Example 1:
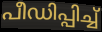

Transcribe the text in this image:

പീഡിപ്പിച്ച്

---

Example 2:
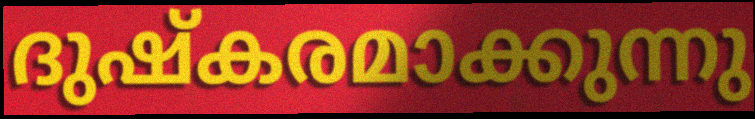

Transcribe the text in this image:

ദുഷ്കരമാക്കുന്നു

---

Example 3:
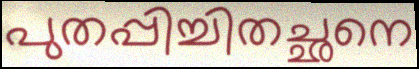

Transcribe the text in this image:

പുതപ്പിച്ചിതച്ഛനെ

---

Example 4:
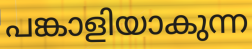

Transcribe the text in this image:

പങ്കാളിയാകുന്ന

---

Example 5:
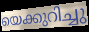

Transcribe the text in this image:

യെക്കുറിച്ചു